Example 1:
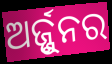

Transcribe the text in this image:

ଅର୍ଜ୍ଜୁନର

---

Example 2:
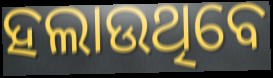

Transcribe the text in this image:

ହଲାଉଥିବେ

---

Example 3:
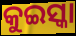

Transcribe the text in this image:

କୁଇସ୍କା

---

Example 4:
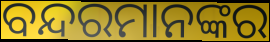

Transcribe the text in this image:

ବନ୍ଦରମାନଙ୍କର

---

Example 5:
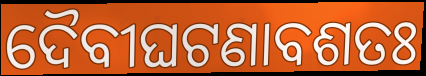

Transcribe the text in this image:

ଦୈବୀଘଟଣାବଶତଃ